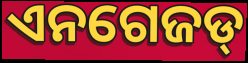
ଏନଗେଜଡ୍